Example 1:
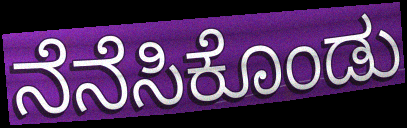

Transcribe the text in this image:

ನೆನೆಸಿಕೊಂಡು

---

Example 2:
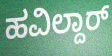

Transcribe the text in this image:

ಹವಿಲ್ದಾರ್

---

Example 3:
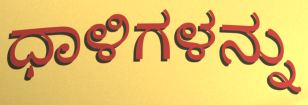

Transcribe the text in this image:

ಧಾಳಿಗಳನ್ನು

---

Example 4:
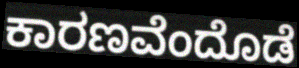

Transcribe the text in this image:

ಕಾರಣವೆಂದೊಡೆ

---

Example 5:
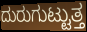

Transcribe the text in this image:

ದುರುಗುಟ್ಟುತ್ತ